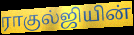
ராகுல்ஜியின்